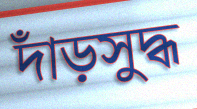
দাঁড়সুদ্ধ